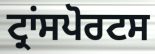
ਟ੍ਰਾਂਸਪੋਰਟਸ